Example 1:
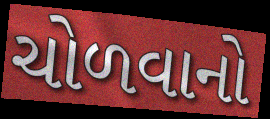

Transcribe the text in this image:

ચોળવાનો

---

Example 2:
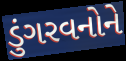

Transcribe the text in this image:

ડુંગરવનોને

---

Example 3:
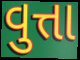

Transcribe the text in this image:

વુત્તા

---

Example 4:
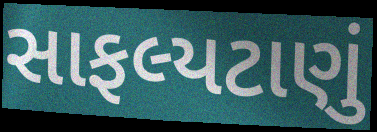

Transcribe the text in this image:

સાફલ્યટાણું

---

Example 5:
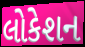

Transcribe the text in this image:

લોકેશન